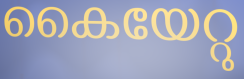
കൈയേറ്റു